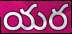
యర